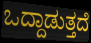
ಒದ್ದಾಡುತ್ತದೆ